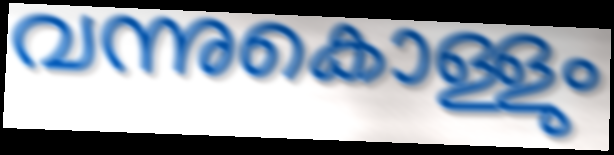
വന്നുകൊള്ളും